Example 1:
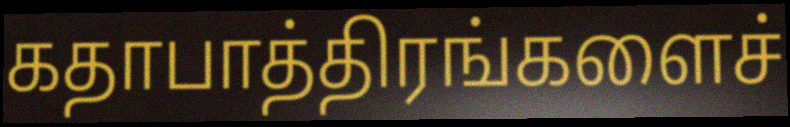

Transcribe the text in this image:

கதாபாத்திரங்களைச்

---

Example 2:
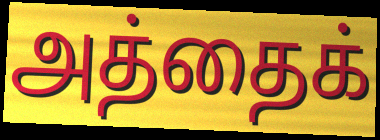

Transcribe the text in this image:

அத்தைக்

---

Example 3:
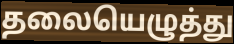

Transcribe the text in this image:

தலையெழுத்து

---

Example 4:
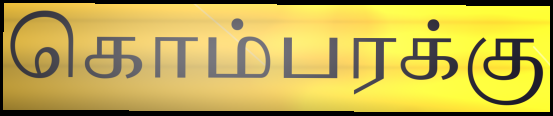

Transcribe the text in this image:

கொம்பரக்கு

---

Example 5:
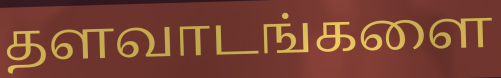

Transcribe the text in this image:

தளவாடங்களை